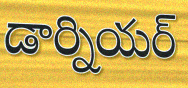
డార్నియర్